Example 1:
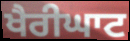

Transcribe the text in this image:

ਖੈਰੀਘਾਟ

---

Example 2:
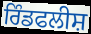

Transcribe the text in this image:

ਰਿੰਡਫਲੀਸ਼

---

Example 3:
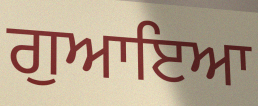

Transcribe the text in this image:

ਗੁਆਇਆ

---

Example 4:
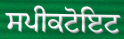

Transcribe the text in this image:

ਸਪੀਕਟੋਇਟ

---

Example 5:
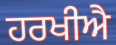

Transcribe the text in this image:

ਹਰਖੀਐ